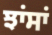
ਝਾਂਸਾਂ